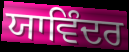
ਯਾਵਿੰਦਰ